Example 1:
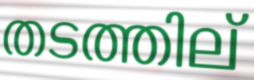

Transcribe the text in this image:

തടത്തില്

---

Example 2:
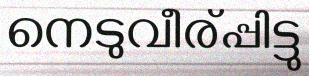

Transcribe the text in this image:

നെടുവീര്പ്പിട്ടു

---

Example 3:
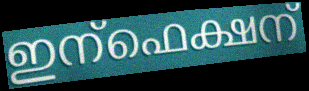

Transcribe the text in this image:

ഇന്ഫെക്ഷന്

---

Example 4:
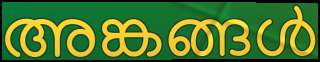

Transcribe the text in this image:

അങ്കങ്ങൾ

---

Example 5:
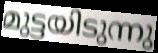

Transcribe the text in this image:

മുട്ടയിടുന്നു